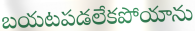
బయటపడలేకపోయాను